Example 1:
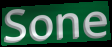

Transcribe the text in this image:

Sone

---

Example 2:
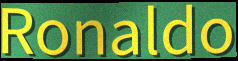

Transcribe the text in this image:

Ronaldo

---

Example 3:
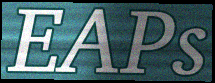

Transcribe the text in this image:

EAPs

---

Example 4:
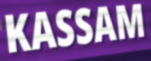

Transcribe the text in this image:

KASSAM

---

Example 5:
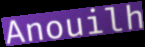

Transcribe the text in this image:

Anouilh